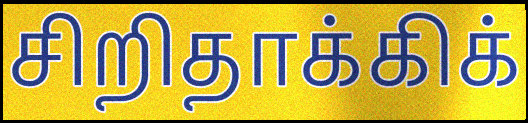
சிறிதாக்கிக்